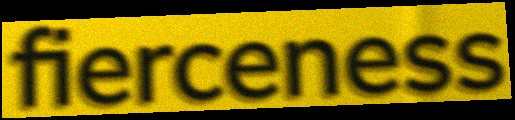
fierceness